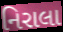
નિરાલા